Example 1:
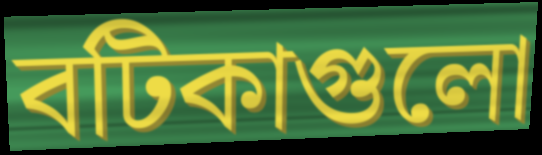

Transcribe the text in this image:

বটিকাগুলো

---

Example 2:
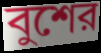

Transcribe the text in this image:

বুশের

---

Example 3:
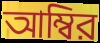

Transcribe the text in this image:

আম্বির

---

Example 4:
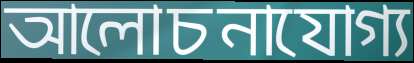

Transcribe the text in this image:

আলোচনাযোগ্য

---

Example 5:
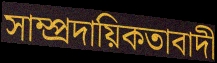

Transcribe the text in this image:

সাম্প্রদায়িকতাবাদী